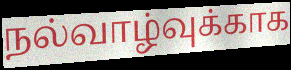
நல்வாழ்வுக்காக